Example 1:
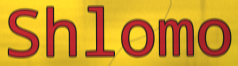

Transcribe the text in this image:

Shlomo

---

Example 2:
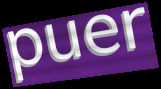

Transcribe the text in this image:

puer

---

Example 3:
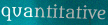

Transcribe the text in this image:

quantitative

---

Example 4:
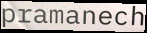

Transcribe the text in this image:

pramanech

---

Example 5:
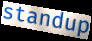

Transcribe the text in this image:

standup